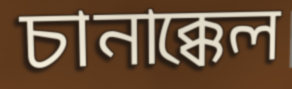
চানাক্কেল